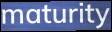
maturity